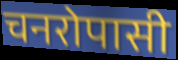
चनरोपासी